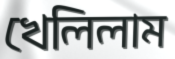
খেলিলাম